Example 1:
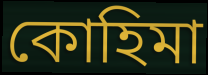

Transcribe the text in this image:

কোহিমা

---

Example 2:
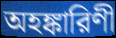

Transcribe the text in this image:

অহঙ্কারিণী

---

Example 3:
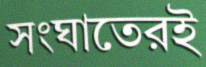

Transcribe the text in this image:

সংঘাতেরই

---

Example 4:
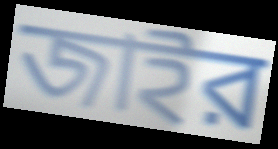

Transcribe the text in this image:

জাইর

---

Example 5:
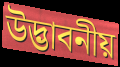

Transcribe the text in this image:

উদ্ভাবনীয়